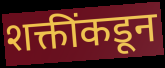
शक्तींकडून